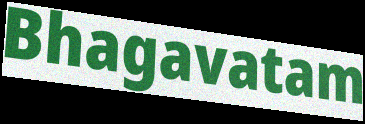
Bhagavatam